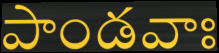
పాండవాః